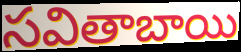
సవితాబాయి